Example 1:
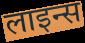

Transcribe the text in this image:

लाइन्स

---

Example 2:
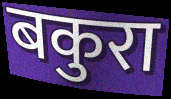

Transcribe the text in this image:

बकुरा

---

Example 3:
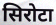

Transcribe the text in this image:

सिरोटा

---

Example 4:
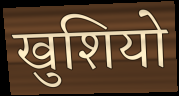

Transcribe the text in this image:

खुशियो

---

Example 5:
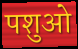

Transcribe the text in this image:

पशुओ